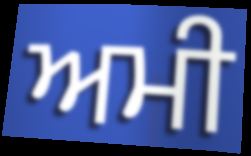
ਅਮੀ